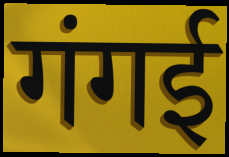
गंगई